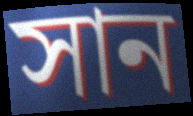
সান